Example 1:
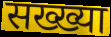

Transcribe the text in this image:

सख्ख्या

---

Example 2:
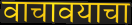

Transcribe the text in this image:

वाचावयाचा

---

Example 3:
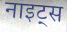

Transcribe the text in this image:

नाइट्‌स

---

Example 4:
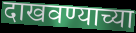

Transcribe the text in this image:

दाखवण्याच्या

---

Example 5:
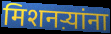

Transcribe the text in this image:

मिशनऱ्‍यांना